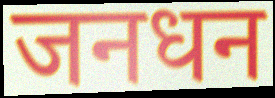
जनधन